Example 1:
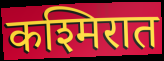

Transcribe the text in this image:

कश्मिरात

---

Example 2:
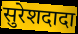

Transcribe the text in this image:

सुरेशदादा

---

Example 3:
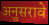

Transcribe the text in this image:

अनुसरावे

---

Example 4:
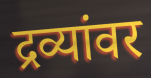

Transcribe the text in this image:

द्रव्यांवर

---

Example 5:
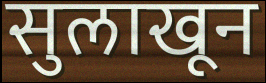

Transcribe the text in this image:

सुलाखून